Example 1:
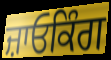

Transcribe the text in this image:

ਜ਼ਾਓਕਿੰਗ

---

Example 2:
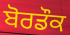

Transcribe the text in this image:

ਬੋਰਡੌਕ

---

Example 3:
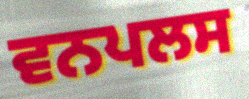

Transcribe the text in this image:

ਵਨਪਲਸ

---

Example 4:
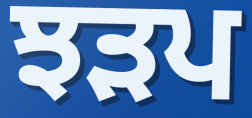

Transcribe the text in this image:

ਝੜਪ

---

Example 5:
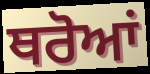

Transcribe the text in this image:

ਥਰੋਆਂ